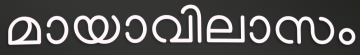
മായാവിലാസം